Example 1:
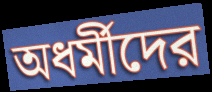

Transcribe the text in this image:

অধর্মীদের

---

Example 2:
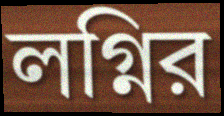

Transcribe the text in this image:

লগ্নির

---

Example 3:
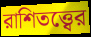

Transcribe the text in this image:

রাশিতত্ত্বের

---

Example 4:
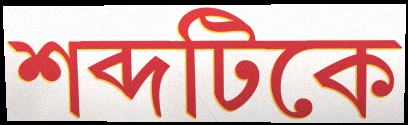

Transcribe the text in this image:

শব্দটিকে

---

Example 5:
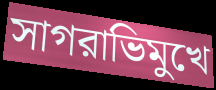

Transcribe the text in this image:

সাগরাভিমুখে